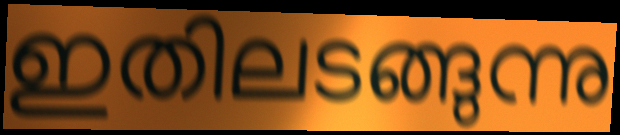
ഇതിലടങ്ങുന്നു